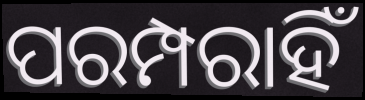
ପରମ୍ପରାହିଁ